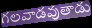
గలవాడవుతాడు